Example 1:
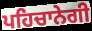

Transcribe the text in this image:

ਪਹਿਚਾਨੇਗੀ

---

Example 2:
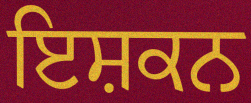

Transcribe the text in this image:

ਇਸ਼ਕਨ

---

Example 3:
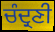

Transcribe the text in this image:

ਚੰਦ੍ਰਣੀ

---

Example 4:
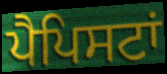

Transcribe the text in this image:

ਪੈਪਿਸਟਾਂ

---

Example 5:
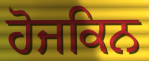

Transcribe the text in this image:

ਹੋਜਕਿਨ